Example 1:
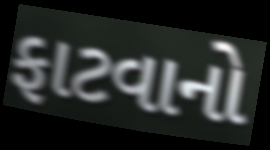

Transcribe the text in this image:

ફાટવાનો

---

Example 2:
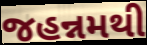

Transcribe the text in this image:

જહન્નમથી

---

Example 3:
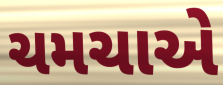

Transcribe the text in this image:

ચમચાએ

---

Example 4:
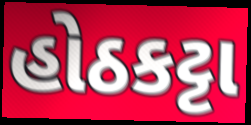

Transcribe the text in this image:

હોઠકટ્ટા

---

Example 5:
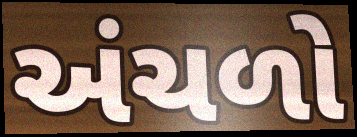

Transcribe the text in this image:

અંચળો